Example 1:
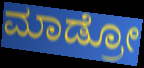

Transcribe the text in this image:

ಮಾಡ್ರೋ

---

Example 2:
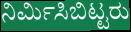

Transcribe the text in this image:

ನಿರ್ಮಿಸಿಬಿಟ್ಟರು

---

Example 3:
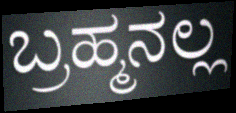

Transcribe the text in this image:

ಬ್ರಹ್ಮನಲ್ಲ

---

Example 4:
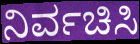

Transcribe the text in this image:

ನಿರ್ವಚಿಸಿ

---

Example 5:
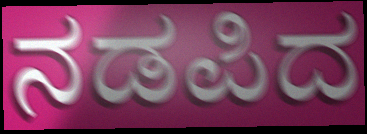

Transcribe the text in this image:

ನಡಪಿದ